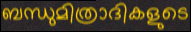
ബന്ധുമിത്രാദികളുടെ